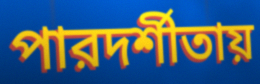
পারদর্শীতায়